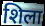
शिला